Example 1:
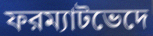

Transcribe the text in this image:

ফরম্যাটভেদে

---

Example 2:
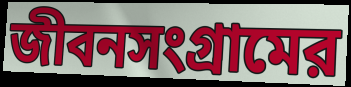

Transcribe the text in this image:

জীবনসংগ্রামের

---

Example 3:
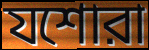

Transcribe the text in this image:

যশোরা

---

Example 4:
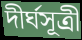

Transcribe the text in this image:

দীর্ঘসূত্রী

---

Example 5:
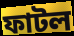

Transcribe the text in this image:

ফাটল